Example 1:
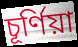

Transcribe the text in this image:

চূর্ণিয়া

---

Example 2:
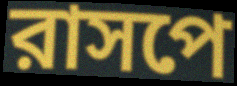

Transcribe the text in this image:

রাসপে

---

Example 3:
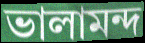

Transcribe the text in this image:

ভালামন্দ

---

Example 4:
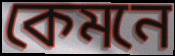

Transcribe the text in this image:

কেমনে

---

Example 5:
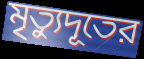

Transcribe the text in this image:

মৃত্যুদূতের